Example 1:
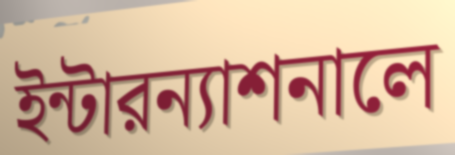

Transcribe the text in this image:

ইন্টারন্যাশনালে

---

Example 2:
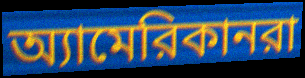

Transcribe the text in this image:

অ্যামেরিকানরা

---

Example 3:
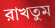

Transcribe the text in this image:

রাখতুম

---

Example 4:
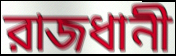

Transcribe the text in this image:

রাজধানী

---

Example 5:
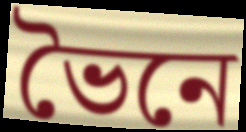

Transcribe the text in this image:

ভৈনে